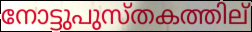
നോട്ടുപുസ്തകത്തില്